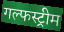
गल्फस्ट्रीम